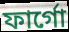
ফার্গো